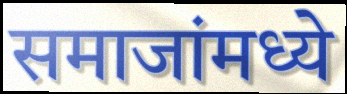
समाजांमध्ये